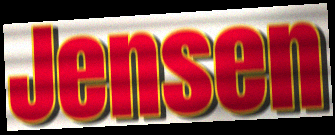
Jensen